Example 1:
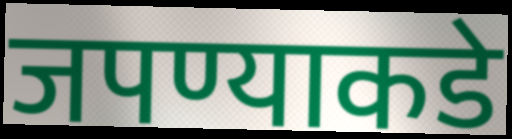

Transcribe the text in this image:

जपण्याकडे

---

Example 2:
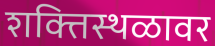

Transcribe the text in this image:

शक्तिस्थळावर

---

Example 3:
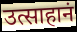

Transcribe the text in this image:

उत्साहानं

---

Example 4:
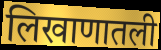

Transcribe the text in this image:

लिखाणातली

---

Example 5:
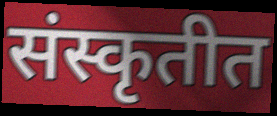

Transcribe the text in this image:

संस्कृतीत